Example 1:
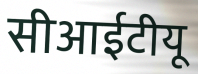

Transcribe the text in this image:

सीआईटीयू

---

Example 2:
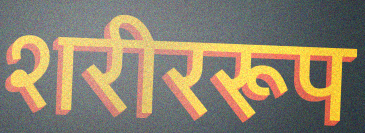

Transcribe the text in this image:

शरीररूप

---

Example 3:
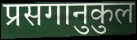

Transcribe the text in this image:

प्रसगानुकुल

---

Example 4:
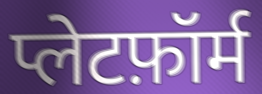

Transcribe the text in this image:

प्लेटफ़ॉर्म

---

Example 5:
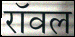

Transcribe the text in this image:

रॉवल